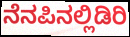
ನೆನಪಿನಲ್ಲಿಡಿರಿ